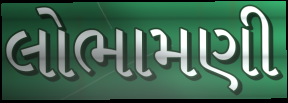
લોભામણી